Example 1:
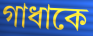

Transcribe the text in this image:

গাধাকে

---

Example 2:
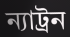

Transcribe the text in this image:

ন্যাট্রন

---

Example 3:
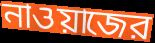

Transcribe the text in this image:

নাওয়াজের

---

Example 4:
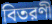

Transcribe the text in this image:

বিতরণী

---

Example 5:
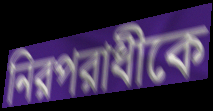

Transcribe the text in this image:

নিরপরাধীকে